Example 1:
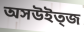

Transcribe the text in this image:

অসউইত্জ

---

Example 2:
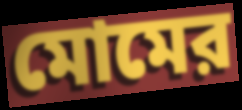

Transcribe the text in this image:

মোমের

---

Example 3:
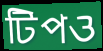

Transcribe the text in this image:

টিপও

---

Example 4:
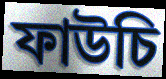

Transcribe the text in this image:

ফাউচি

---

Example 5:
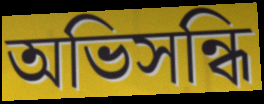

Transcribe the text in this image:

অভিসন্ধি